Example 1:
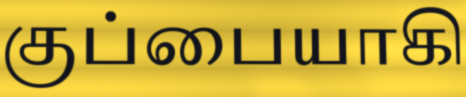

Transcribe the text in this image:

குப்பையாகி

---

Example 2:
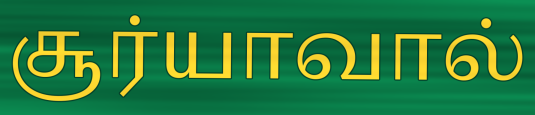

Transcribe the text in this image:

சூர்யாவால்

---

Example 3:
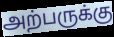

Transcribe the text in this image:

அற்பருக்கு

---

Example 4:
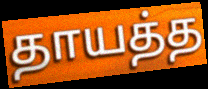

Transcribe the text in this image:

தாயத்த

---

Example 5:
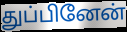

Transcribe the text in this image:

துப்பினேன்